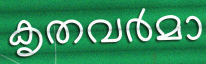
കൃതവർമാ